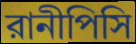
রানীপিসি